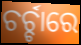
ଚର୍ଚ୍ଚାରେ